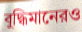
বুদ্ধিমানেরও